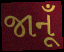
જાનૂઁ